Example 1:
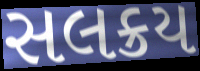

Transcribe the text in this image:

સલક્રય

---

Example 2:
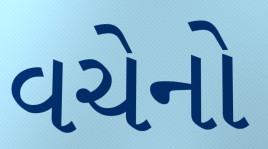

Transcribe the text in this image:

વચેનો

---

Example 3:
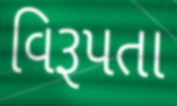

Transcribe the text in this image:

વિરૂપતા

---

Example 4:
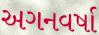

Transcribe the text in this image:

અગનવર્ષા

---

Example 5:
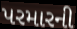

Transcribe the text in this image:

પરમારની